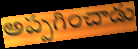
అప్పగించాడు